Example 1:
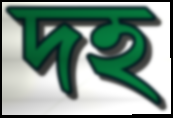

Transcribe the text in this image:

দহ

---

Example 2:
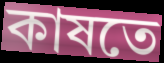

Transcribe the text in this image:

কাষতে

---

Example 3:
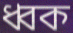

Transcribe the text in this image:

ধ্বক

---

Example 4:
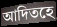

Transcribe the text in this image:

আদিতহে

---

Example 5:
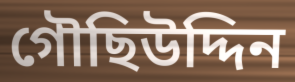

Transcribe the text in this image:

গৌছিউদ্দিন